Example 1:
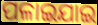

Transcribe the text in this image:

ପଳାଇଯାଇ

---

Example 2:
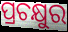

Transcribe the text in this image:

ପ୍ରଚକ୍ଷୁର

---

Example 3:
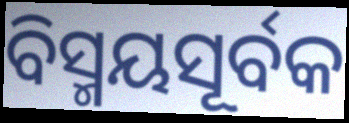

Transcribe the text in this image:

ବିସ୍ମୟସୂର୍ବକ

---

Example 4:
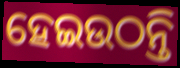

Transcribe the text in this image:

ହେଇଉଠନ୍ତି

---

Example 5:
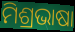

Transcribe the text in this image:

ମିଶ୍ରଭାଷା